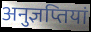
अनुज्ञप्तियां